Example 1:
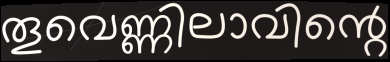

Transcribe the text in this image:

തൂവെണ്ണിലാവിന്റെ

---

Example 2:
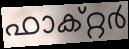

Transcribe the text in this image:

ഫാക്റ്റർ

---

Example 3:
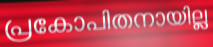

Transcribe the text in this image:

പ്രകോപിതനായില്ല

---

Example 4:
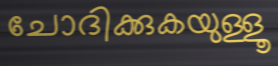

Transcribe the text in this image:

ചോദിക്കുകയുള്ളൂ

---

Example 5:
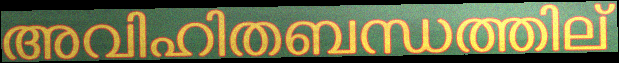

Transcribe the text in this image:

അവിഹിതബന്ധത്തില്